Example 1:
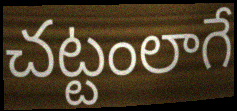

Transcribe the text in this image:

చట్టంలాగే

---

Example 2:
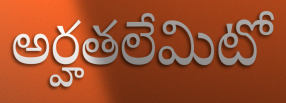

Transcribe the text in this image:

అర్హతలేమిటో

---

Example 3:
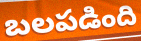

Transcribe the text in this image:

బలపడింది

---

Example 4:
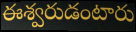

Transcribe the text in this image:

ఈశ్వరుడంటారు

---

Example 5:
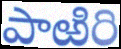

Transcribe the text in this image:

పాఱిరి